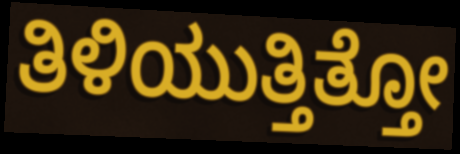
ತಿಳಿಯುತ್ತಿತ್ತೋ